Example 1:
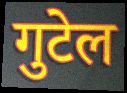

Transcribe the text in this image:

गुटेल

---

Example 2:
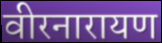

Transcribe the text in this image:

वीरनारायण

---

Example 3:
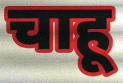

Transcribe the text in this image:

चाहू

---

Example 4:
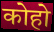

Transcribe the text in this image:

कोहो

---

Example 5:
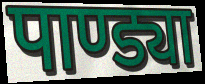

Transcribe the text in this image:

पाण्ड्या